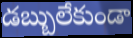
డబ్బులేకుండా